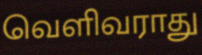
வெளிவராது